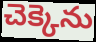
చెక్కెను